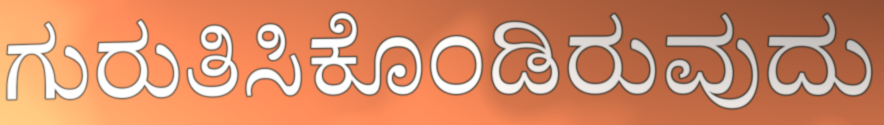
ಗುರುತಿಸಿಕೊಂಡಿರುವುದು